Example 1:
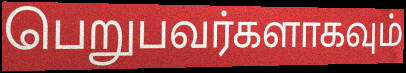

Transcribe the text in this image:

பெறுபவர்களாகவும்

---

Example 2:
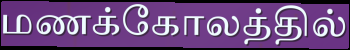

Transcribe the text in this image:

மணக்கோலத்தில்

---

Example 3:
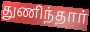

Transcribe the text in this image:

துணிந்தார்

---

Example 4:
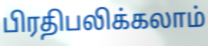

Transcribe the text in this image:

பிரதிபலிக்கலாம்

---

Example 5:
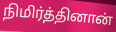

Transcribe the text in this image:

நிமிர்த்தினான்